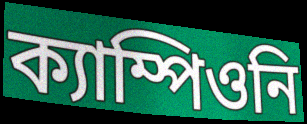
ক্যাম্পিওনি